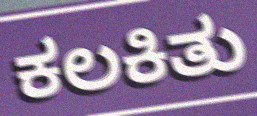
ಕಲಕಿತು